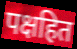
पक्षहित